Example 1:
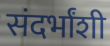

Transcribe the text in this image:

संदर्भांशी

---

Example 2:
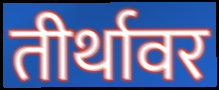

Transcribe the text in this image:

तीर्थावर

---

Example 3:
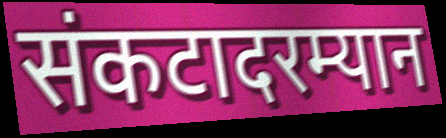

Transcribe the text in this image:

संकटादरम्यान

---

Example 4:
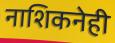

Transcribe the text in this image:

नाशिकनेही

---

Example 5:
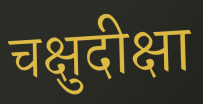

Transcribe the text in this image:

चक्षुदीक्षा